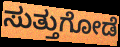
ಸುತ್ತುಗೋಡೆ